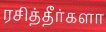
ரசித்தீர்களா